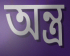
অন্ত্ৰ